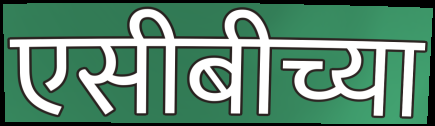
एसीबीच्या